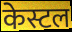
केस्टल